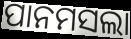
ପାନମସଲା